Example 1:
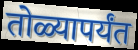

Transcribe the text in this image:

तोळ्यापर्यंत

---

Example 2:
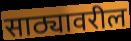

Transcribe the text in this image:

साठ्यावरील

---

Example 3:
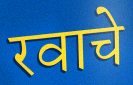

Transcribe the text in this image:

रवाचे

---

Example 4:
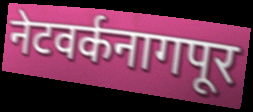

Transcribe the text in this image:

नेटवर्कनागपूर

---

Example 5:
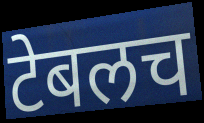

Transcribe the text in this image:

टेबलच